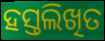
ହସ୍ତଲିଖିତ